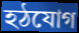
হঠযোগ